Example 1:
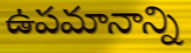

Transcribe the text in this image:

ఉపమానాన్ని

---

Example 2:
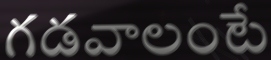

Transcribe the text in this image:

గడవాలంటే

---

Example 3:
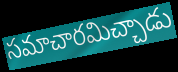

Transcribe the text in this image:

సమాచారమిచ్చాడు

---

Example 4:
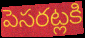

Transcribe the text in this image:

పెసరట్లకి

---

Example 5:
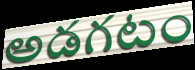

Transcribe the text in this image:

అడగటం